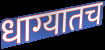
धाग्यातच